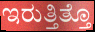
ಇರುತ್ತಿತ್ತೊ